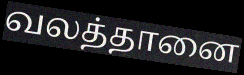
வலத்தானை